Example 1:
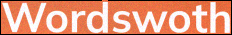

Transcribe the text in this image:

Wordswoth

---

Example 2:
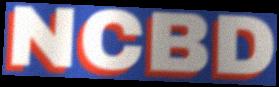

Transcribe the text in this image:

NCBD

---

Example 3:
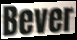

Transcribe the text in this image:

Bever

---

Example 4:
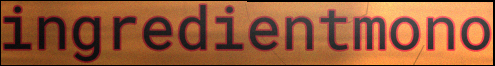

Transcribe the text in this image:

ingredientmono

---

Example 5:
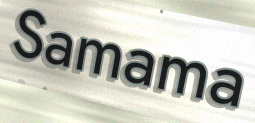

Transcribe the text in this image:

Samama